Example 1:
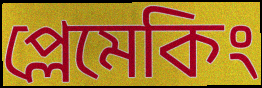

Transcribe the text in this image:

প্লেমেকিং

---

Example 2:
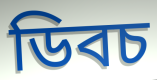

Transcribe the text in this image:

ডিবচ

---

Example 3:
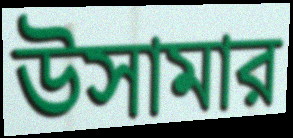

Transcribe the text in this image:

উসামার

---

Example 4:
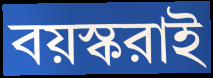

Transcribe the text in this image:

বয়স্করাই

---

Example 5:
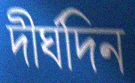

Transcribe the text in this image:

দীর্ঘদিন